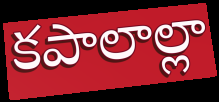
కపాలాల్లా